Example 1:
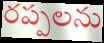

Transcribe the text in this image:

రప్పలను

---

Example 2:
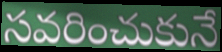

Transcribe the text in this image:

సవరించుకునే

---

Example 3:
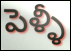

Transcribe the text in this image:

పెళ్ళీ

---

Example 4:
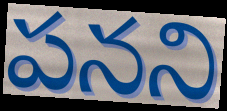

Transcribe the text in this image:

పనని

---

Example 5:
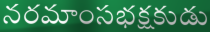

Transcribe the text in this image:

నరమాంసభక్షకుడు